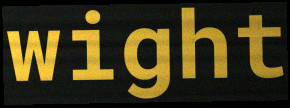
wight